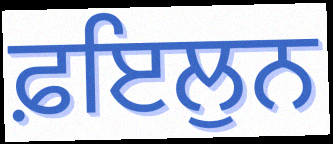
ਫ਼ਇਲੁਨ